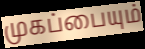
முகப்பையும்